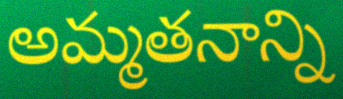
అమ్మతనాన్ని